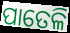
ପାତେଳି